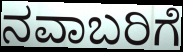
ನವಾಬರಿಗೆ